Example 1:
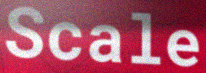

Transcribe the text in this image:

Scale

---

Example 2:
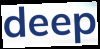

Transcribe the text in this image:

deep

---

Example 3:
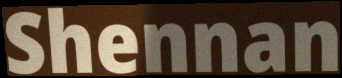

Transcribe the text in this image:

Shennan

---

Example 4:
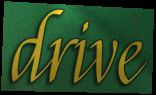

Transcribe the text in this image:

drive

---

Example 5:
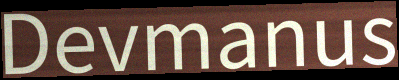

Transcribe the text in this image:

Devmanus